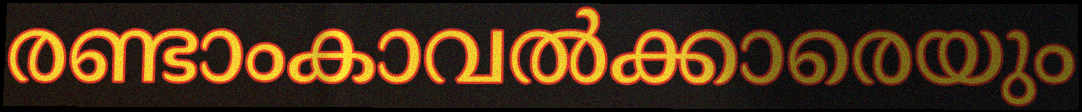
രണ്ടാംകാവൽക്കാരെയും